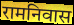
रामनिवास